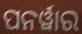
ପନର୍ୱାର